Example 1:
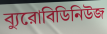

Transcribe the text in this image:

ব্যুরোবিডিনিউজ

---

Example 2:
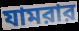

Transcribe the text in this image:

যামরার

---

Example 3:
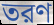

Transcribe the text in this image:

তরণ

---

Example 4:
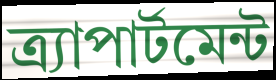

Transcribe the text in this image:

ত্র্যাপার্টমেন্ট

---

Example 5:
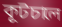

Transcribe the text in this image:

কূটচালে